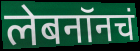
लेबनॉनचं